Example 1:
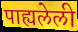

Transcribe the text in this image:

पाह्यलेली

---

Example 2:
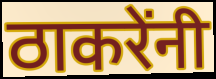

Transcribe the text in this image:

ठाकरेंनी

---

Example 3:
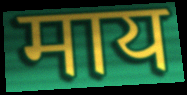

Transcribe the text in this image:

माय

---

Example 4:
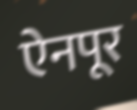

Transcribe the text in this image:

ऐनपूर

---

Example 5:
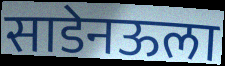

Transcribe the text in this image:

साडेनऊला